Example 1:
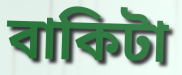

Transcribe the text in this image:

বাকিটা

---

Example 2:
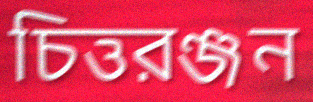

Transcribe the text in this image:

চিত্তরঞ্জন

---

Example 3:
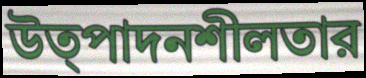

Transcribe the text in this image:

উত্পাদনশীলতার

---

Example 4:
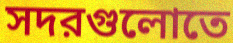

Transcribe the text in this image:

সদরগুলোতে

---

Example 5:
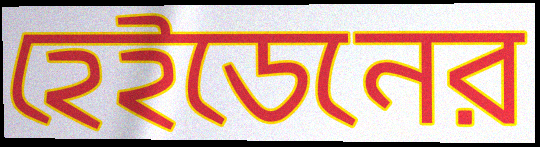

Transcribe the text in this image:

হেইডেনের